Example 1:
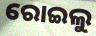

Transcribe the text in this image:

ରୋଇଲୁ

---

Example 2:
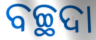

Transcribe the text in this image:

ବଚ୍ଛଦା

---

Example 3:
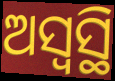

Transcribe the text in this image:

ଅସ୍ୱସ୍ଥି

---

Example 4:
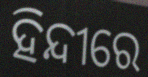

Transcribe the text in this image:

ହିନ୍ଦୀରେ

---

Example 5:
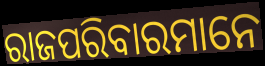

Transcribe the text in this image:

ରାଜପରିବାରମାନେ